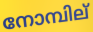
നോമ്പില്